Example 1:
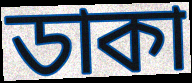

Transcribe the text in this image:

ডাকা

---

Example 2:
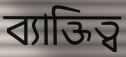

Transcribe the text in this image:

ব্যাক্তিত্ব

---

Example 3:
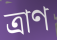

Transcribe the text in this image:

ত্রাণ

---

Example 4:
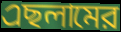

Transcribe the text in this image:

এছলামের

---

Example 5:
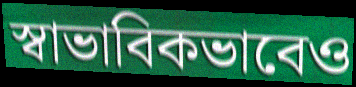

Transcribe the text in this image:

স্বাভাবিকভাবেও